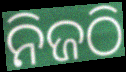
ନିଜଠି